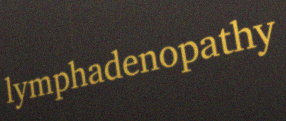
lymphadenopathy